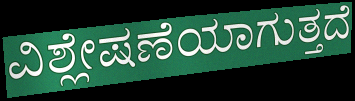
ವಿಶ್ಲೇಷಣೆಯಾಗುತ್ತದೆ